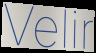
Velir